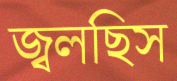
জ্বলছিস